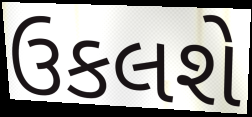
ઉકલશે